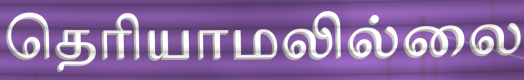
தெரியாமலில்லை